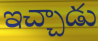
ఇచ్చాడు